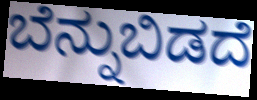
ಬೆನ್ನುಬಿಡದೆ